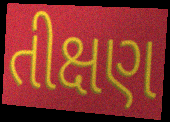
તીક્ષણ